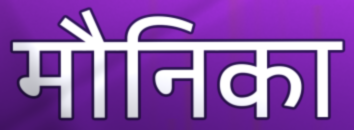
मौनिका